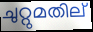
ചുറ്റുമതില്